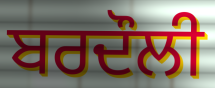
ਬਰਦੌਲੀ